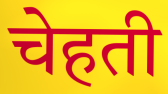
चेहती